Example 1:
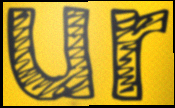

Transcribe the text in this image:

ur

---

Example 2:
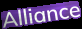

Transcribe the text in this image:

Alliance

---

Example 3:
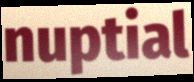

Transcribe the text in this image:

nuptial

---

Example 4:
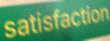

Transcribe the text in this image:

satisfaction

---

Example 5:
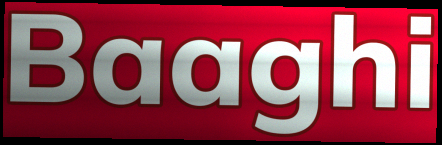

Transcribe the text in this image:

Baaghi